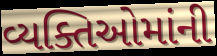
વ્યક્તિઓમાંની